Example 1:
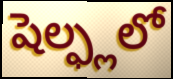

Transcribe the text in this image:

షెల్ఫ్లలో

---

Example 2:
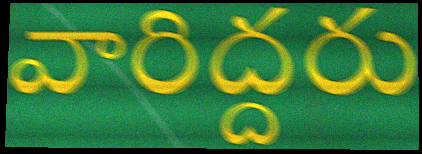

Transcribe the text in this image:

వారిద్దరు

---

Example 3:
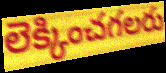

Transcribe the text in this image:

లెక్కించగలరు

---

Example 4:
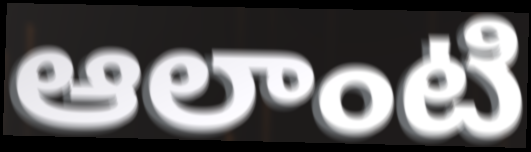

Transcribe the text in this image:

ఆలాంటి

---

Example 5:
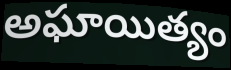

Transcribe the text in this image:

అఘాయిత్యం